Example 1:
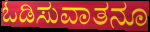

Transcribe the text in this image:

ಓಡಿಸುವಾತನೂ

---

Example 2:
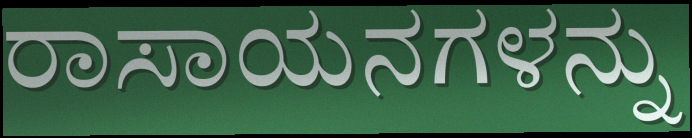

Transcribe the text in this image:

ರಾಸಾಯನಗಳನ್ನು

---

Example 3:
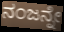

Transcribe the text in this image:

ನಂಜನ್ನೇ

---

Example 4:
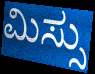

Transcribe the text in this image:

ಮಿಸ್ಸು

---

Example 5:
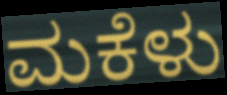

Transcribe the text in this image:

ಮಕೆಳು